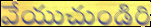
వేయుచుండిరి